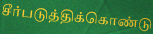
சீர்படுத்திக்கொண்டு